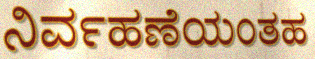
ನಿರ್ವಹಣೆಯಂತಹ